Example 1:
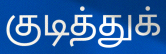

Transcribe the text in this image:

குடித்துக்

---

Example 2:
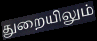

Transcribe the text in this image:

துறையிலும்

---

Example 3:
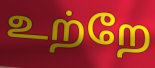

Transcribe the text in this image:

உற்றே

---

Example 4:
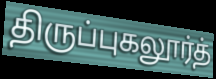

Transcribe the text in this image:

திருப்புகலூர்த்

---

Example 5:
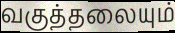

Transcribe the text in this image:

வகுத்தலையும்